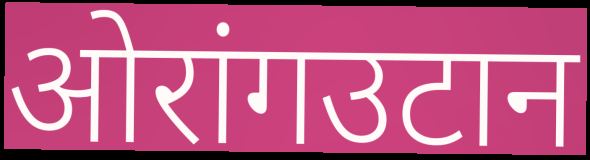
ओरांगउटान